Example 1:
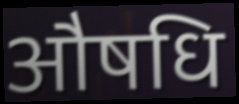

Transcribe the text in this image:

औषधि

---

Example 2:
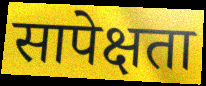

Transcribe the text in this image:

सापेक्षता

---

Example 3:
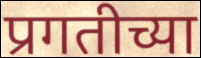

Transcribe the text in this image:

प्रगतीच्या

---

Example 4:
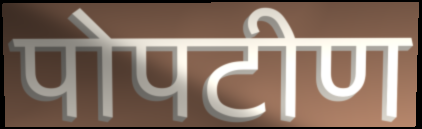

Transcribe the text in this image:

पोपटीण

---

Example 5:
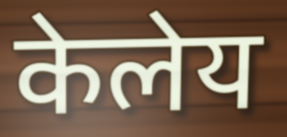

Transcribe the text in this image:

केलेय